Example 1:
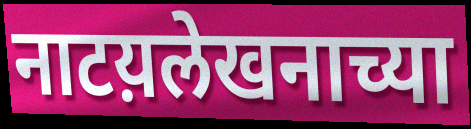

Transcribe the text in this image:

नाटय़लेखनाच्या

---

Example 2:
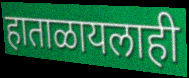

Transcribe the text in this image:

हाताळायलाही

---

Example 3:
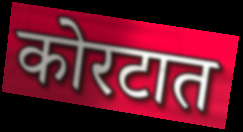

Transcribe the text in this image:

कोरटात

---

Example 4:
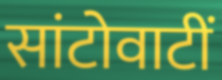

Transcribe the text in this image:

सांटोवाटीं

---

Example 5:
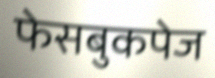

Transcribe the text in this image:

फेसबुकपेज